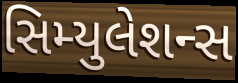
સિમ્યુલેશન્સ